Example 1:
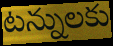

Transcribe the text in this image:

టన్నులకు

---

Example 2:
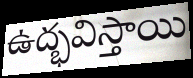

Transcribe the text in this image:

ఉద్భవిస్తాయి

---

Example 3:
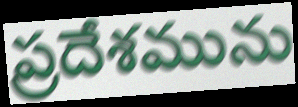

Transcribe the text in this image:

ప్రదేశమును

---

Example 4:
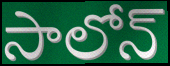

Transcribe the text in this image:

సాలోన్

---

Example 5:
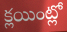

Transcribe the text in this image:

క్లయింట్లో